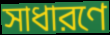
সাধারণে